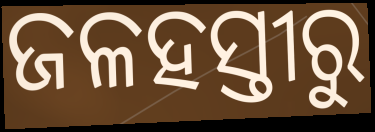
ଜଳହସ୍ତୀରୁ